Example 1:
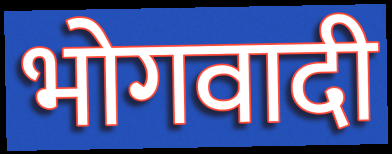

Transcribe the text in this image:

भोगवादी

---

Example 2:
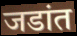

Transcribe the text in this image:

जडांत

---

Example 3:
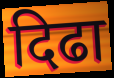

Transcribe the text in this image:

दिढा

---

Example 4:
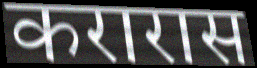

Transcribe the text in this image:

करारास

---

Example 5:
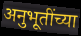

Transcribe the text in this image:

अनुभूतींच्या